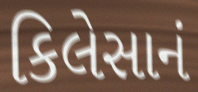
કિલેસાનં